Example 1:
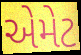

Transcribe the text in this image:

એમેટ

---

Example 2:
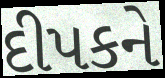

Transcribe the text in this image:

દીપકને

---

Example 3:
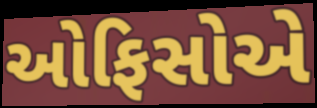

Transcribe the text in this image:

ઓફિસોએ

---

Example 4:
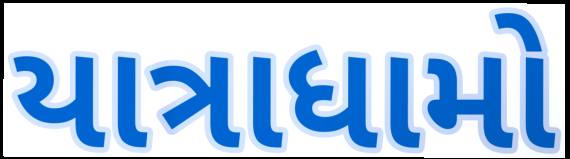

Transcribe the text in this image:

યાત્રાધામો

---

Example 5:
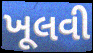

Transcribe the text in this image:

ખૂલવી